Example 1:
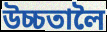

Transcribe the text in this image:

উচ্চতালৈ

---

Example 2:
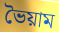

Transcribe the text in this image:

ভৈয়াম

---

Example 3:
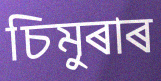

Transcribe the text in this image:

চিমুৰাৰ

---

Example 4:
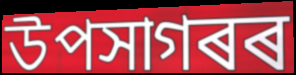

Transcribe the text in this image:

উপসাগৰৰ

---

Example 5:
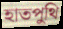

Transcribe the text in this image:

হাতপুথি